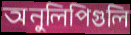
অনুলিপিগুলি